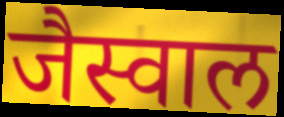
जैस्वाल